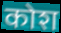
कोश